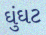
ઘુંઘટ